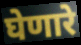
घेणारे